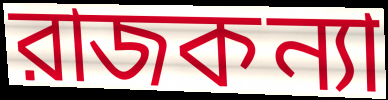
রাজকন্যা